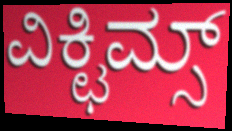
ವಿಕ್ಟಿಮ್ಸ್